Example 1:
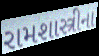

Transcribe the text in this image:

રામશાસ્ત્રીના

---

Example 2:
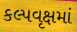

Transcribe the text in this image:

કલ્પવૃક્ષમાં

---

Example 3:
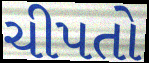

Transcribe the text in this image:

ચીપતો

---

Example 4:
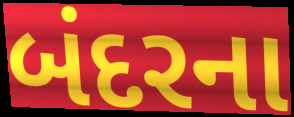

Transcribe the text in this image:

બંદરના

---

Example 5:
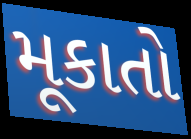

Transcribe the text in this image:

મૂકાતો